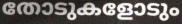
തോടുകളോടും